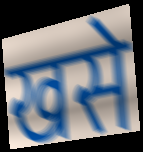
खसे